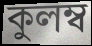
কুলম্ব